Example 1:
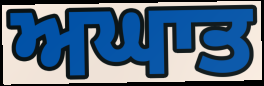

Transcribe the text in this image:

ਅਘਾਤ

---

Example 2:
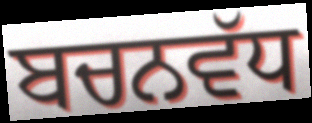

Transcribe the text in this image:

ਬਚਨਵੱਧ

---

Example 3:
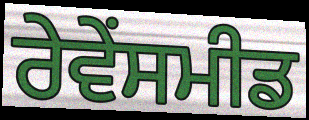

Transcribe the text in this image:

ਰੇਵੇਂਸਮੀਡ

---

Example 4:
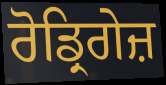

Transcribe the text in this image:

ਰੋਡ੍ਰਿਗੇਜ਼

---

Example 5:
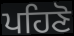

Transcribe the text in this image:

ਪਹਿਣੋ